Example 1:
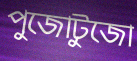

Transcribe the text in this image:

পুজোটুজো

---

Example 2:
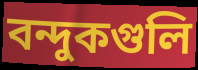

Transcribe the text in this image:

বন্দুকগুলি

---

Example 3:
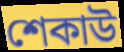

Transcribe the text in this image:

শেকাউ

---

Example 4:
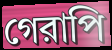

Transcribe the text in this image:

গেরাপি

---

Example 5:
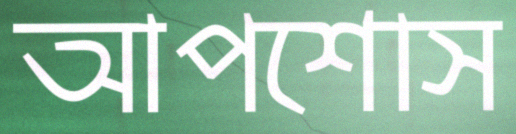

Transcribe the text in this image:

আপশোস